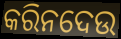
କରିନଦେଉ